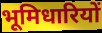
भूमिधारियों